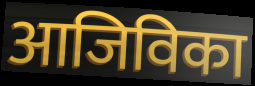
आजिविका